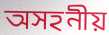
অসহনীয়